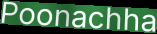
Poonachha